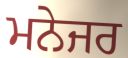
ਮਨੇਜਰ